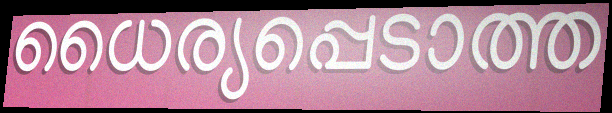
ധൈര്യപ്പെടാത്ത